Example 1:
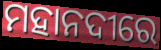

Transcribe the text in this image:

ମହାନଦୀରେ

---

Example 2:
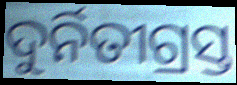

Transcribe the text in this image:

ଦୁର୍ନିତୀଗ୍ରସ୍ତ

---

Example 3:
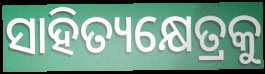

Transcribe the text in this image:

ସାହିତ୍ୟକ୍ଷେତ୍ରକୁ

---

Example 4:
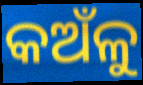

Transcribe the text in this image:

କଅଁଳୁ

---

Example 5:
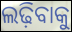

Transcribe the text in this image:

ଲଢ଼ିବାକୁ